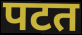
पटत